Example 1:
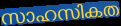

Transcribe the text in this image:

സാഹസികത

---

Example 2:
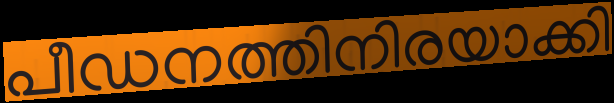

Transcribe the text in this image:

പീഡനത്തിനിരയാക്കി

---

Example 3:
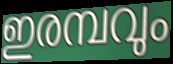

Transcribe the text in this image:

ഇരമ്പവും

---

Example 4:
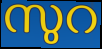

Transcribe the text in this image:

സുറ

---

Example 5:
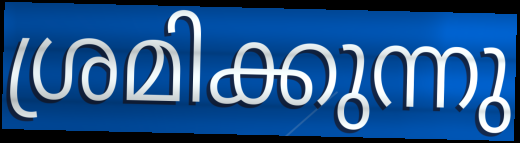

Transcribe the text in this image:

ശ്രമിക്കുന്നു